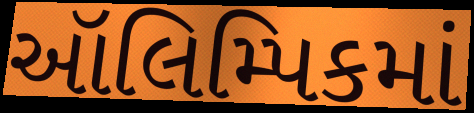
ઑલિમ્પિકમાં